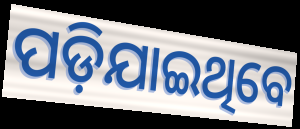
ପଡ଼ିଯାଇଥିବେ